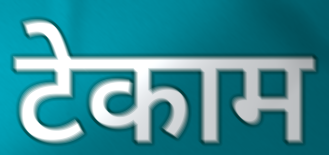
टेकाम